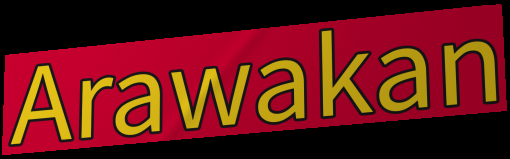
Arawakan